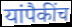
यांपैकींच